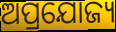
ଅପ୍ରଯୋଜ୍ୟ